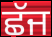
ਛੱਜ